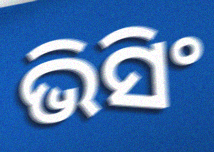
ଭିସିଂ